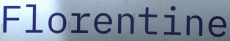
Florentine